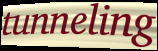
tunneling